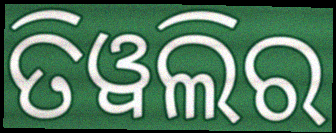
ତିୱଲିର